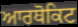
ਆਰਥੋਕਿਟ